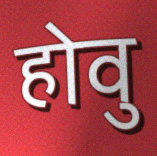
होवु